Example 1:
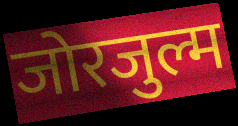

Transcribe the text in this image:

जोरजुल्म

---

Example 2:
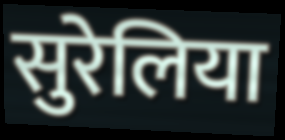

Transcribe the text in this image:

सुरेलिया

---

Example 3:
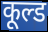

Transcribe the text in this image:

कूल्ड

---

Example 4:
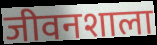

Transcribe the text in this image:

जीवनशाला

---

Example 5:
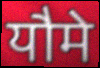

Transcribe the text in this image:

यौमे